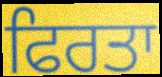
ਫਿਰਤਾ